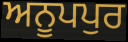
ਅਨੂਪਪੁਰ